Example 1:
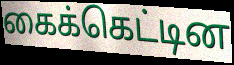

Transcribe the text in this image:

கைக்கெட்டின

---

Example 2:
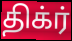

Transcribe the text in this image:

திக்ர்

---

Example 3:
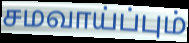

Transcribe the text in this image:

சமவாய்ப்பும்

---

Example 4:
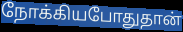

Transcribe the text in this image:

நோக்கியபோதுதான்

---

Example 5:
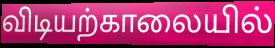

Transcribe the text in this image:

விடியற்காலையில்